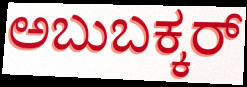
ಅಬುಬಕ್ಕರ್